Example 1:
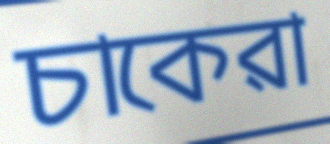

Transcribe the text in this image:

চাকেৱা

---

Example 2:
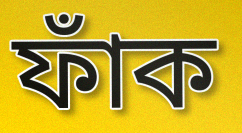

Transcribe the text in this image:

ফাঁক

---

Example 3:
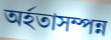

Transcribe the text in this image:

অৰ্হতাসম্পন্ন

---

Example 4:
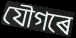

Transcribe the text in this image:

যৌগৰে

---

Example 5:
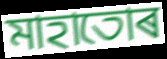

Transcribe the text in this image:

মাহাতোৰ